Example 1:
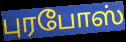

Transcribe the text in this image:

புரபோஸ்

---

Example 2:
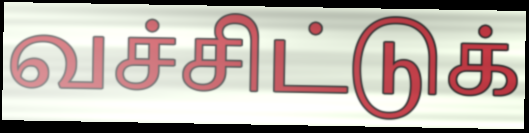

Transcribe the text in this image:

வச்சிட்டுக்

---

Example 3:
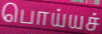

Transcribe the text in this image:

பொய்யச்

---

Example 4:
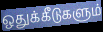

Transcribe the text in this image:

ஒதுக்கீடுகளும்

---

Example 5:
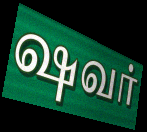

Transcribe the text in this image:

ஷவர்